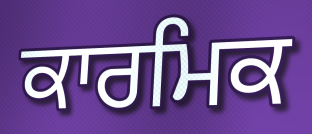
ਕਾਰਮਿਕ